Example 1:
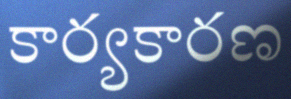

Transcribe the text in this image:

కార్యకారణ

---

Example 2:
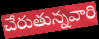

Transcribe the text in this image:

చేరుతున్నవారి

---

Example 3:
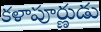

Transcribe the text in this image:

కళాపూర్ణుడు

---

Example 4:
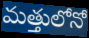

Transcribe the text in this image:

మత్తులోనో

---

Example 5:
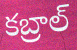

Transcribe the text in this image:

కబ్రాల్